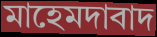
মাহেমদাবাদ